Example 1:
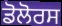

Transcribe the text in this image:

ਡੋਲੋਰਸ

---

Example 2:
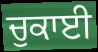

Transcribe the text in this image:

ਚੁਕਾਈ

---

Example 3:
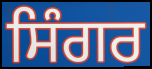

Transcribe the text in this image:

ਸਿੰਗਰ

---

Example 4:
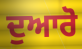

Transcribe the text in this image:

ਦੁਆਰੋ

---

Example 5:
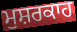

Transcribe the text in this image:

ਮੁਸ਼ਰਕਾਹ